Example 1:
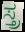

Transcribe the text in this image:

ಸ್ತ್ರ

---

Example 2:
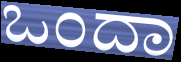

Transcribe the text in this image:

ಒಂದಾ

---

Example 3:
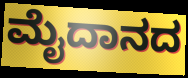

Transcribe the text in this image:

ಮೈದಾನದ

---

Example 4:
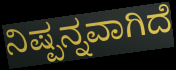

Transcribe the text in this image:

ನಿಷ್ಪನ್ನವಾಗಿದೆ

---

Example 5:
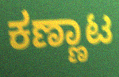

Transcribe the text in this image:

ಕಣ್ಣಾಟ